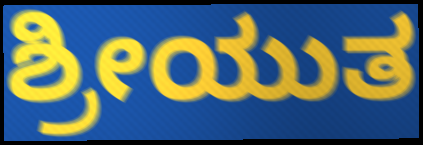
ಶ್ರೀಯುತ